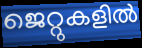
ജെറ്റുകളിൽ